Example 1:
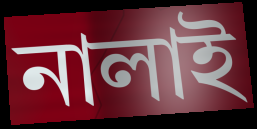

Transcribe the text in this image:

নালাই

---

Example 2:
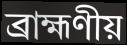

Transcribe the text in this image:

ব্রাহ্মণীয়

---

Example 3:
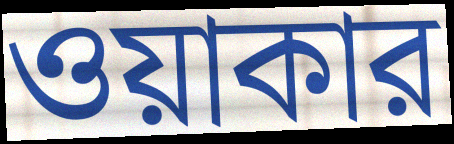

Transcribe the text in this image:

ওয়াকার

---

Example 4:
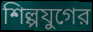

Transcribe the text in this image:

শিল্পযুগের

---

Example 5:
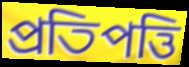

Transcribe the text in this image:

প্রতিপত্তি